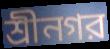
শ্রীনগর